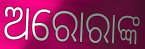
ଅରୋରାଙ୍କ